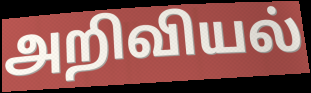
அறிவியல்